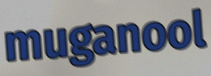
muganool